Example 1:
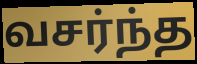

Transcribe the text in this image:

வசர்ந்த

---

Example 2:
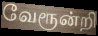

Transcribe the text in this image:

வேரூன்றி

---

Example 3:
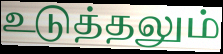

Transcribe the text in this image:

உடுத்தலும்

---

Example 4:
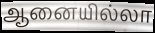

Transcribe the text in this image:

ஆனையில்லா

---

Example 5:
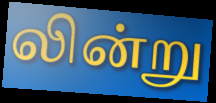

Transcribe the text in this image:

லின்று